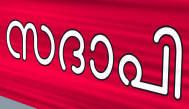
സദാപി